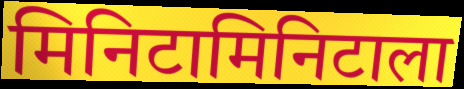
मिनिटामिनिटाला